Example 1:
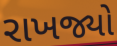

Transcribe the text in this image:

રાખજ્યો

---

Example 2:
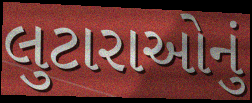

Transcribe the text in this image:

લુટારાઓનું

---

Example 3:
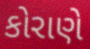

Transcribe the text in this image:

કોરાણે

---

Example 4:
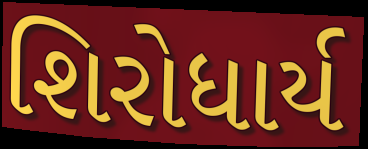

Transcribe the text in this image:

શિરોધાર્ય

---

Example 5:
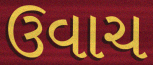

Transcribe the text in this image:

ઉવાચ